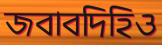
জবাবদিহিও